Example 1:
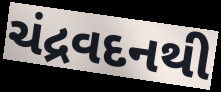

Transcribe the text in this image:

ચંદ્રવદનથી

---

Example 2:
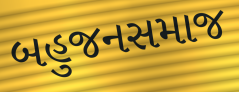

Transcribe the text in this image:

બહુજનસમાજ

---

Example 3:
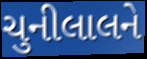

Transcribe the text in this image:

ચુનીલાલને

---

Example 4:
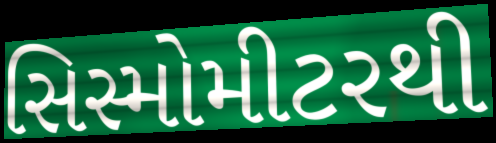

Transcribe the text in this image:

સિસ્મોમીટરથી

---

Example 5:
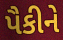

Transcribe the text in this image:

પૈકીને